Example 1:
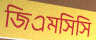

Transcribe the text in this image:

জিএমসিসি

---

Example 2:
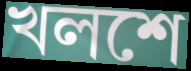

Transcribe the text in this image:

খলশে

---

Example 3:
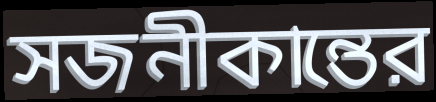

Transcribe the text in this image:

সজনীকান্তের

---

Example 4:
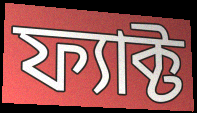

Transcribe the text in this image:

ফ্যাক্ট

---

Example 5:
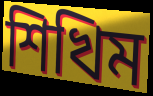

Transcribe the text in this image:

শিখিম